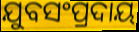
ଯୁବସଂପ୍ରଦାୟ